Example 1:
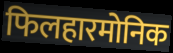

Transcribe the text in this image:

फिलहारमोनिक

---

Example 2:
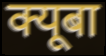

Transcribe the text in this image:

क्यूबा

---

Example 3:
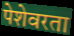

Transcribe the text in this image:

पेशेवरता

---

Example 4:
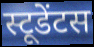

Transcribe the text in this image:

स्टूडेंटस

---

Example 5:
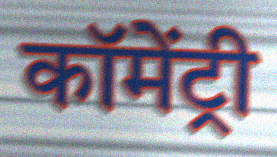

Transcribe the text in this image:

कॉमेंट्री